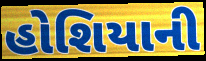
હોશિયાની